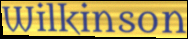
Wilkinson